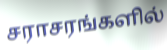
சராசரங்களில்